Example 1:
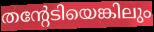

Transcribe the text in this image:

തന്റേടിയെങ്കിലും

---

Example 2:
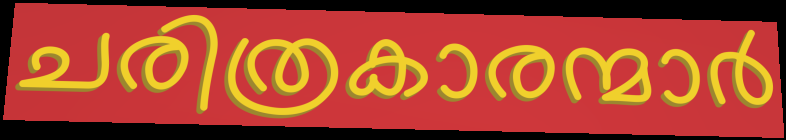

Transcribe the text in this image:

ചരിത്രകാരന്മാർ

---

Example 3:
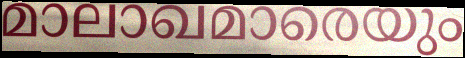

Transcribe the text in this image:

മാലാഖമാരെയും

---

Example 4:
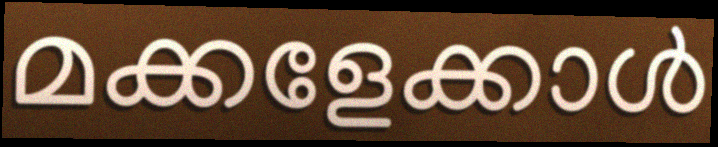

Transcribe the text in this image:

മക്കളേക്കാൾ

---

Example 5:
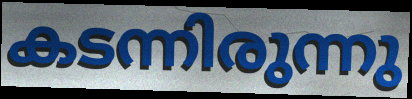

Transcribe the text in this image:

കടന്നിരുന്നു